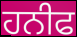
ਹਨੀਫ